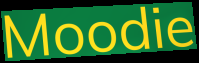
Moodie